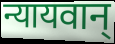
न्यायवान्